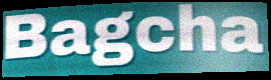
Bagcha